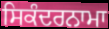
ਸਿਕੰਦਰਨਾਮਾ